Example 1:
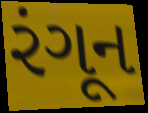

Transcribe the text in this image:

રંગૂન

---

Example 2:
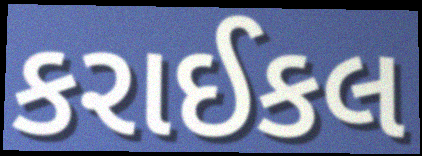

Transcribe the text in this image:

કરાઈકલ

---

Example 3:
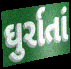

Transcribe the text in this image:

ઘુર્રાતાં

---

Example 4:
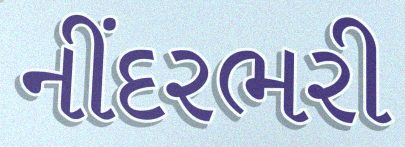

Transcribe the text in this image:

નીંદરભરી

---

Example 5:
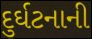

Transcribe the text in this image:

દુર્ઘટનાની